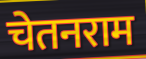
चेतनराम